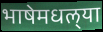
भाषेमधल्या